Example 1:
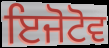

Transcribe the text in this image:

ਇਜੋਟੋਵ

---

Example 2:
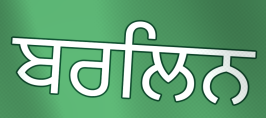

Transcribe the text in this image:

ਬਰਲਿਨ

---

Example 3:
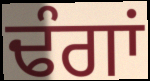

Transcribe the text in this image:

ਢੰਗਾਂ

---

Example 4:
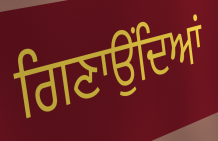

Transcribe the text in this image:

ਗਿਣਾਉਂਦਿਆਂ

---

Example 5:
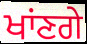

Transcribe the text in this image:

ਖਾਂਣਗੇ